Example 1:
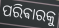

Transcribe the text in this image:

ପରିଵାରକୁ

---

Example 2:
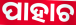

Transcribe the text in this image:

ପାହାଚ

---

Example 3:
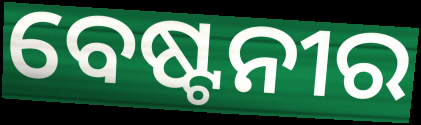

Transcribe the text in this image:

ବେଷ୍ଟନୀର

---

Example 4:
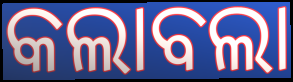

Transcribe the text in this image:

କଲାବଲା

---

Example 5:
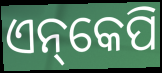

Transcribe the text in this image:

ଏନ୍‌କେପି